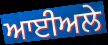
ਆਈਅਲੇ